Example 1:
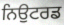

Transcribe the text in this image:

ਨਿਉਟਰਡ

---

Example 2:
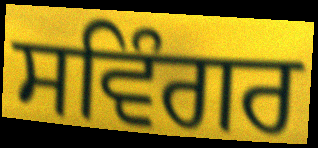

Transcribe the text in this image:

ਸਵਿੰਗਰ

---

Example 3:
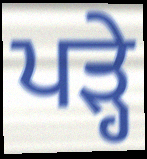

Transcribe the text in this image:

ਪੜ੍ਹੇ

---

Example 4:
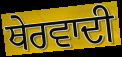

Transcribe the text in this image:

ਥੇਰਵਾਦੀ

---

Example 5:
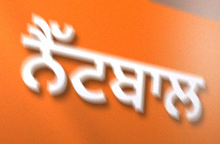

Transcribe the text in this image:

ਨੈੱਟਬਾਲ